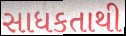
સાધકતાથી